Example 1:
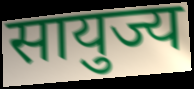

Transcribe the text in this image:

सायुज्य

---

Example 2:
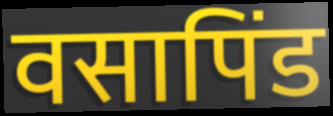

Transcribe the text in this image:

वसापिंड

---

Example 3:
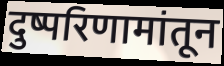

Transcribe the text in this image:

दुष्परिणामांतून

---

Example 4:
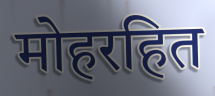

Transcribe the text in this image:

मोहरहित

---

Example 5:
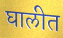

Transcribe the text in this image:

घालीत